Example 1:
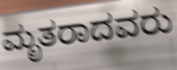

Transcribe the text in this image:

ಮೃತರಾದವರು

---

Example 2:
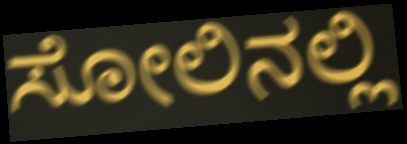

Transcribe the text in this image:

ಸೋಲಿನಲ್ಲಿ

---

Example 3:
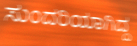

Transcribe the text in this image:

ಸುಂದರಿಯಾಗಿದ್ದ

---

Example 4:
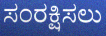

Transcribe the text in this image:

ಸಂರಕ್ಷಿಸಲು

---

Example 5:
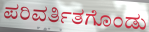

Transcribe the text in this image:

ಪರಿವರ್ತಿತಗೊಂಡು